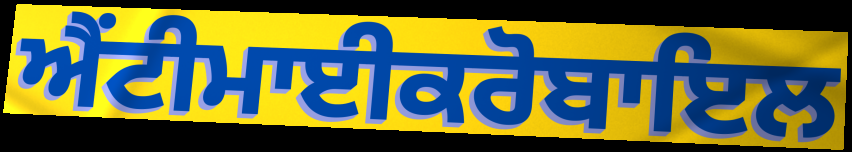
ਐਂਟੀਮਾਈਕਰੋਬਾਇਲ